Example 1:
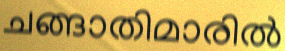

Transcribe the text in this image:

ചങ്ങാതിമാരിൽ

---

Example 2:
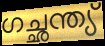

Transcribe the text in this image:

ഗച്ഛന്ത്യ്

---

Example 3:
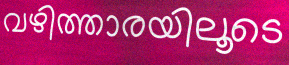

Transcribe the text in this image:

വഴിത്താരയിലൂടെ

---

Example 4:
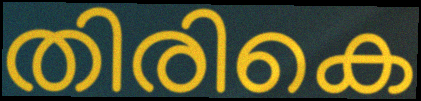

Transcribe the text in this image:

തിരികെ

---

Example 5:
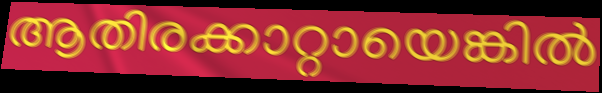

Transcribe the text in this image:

ആതിരക്കാറ്റായെങ്കിൽ